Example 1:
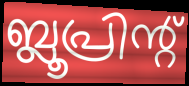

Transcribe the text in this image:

ബ്ലൂപ്രിന്റ്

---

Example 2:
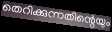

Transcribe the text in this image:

തെറിക്കുന്നതിന്റെയും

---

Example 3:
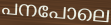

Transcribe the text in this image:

പനപോലെ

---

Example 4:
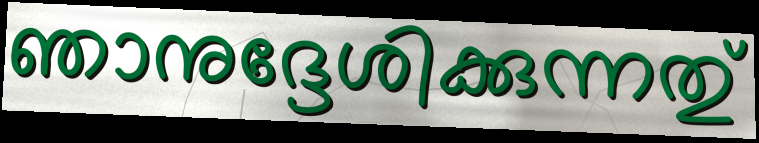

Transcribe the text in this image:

ഞാനുദ്ദേശിക്കുന്നതു്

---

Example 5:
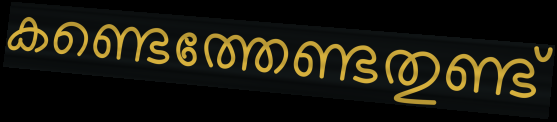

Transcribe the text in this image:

കണ്ടെത്തേണ്ടതുണ്ട്